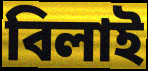
বিলাই